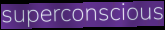
superconscious